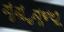
ಪೈಪ್ಲೈನ್ಗಳಲ್ಲಿ